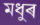
মধুৰ